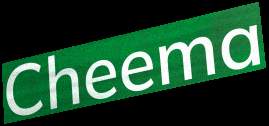
Cheema